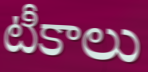
టీకాలు